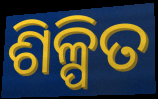
ଶିଳ୍ପିତ